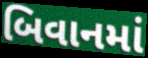
બિવાનમાં